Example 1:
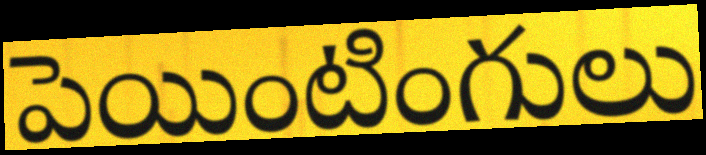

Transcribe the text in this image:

పెయింటింగులు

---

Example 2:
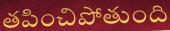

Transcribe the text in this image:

తపించిపోతుంది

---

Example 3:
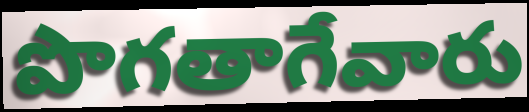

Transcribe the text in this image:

పొగతాగేవారు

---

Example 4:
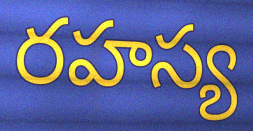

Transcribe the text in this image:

రహస్య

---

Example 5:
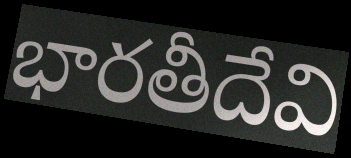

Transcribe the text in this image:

భారతీదేవి